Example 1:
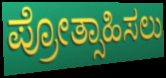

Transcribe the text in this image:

ಪ್ರೋತ್ಸಾಹಿಸಲು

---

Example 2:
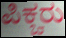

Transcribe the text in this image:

ಪಿಕ್ಚರು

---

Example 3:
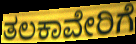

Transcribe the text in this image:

ತಲಕಾವೇರಿಗೆ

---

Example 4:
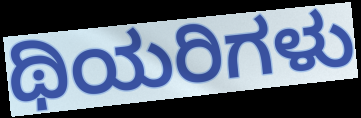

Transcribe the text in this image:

ಥಿಯರಿಗಳು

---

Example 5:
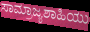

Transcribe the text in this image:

ಸಾಮ್ರಾಜ್ಯಶಾಹಿಯು